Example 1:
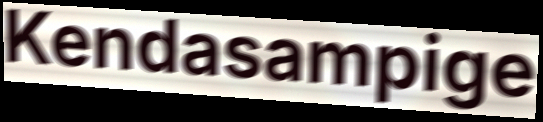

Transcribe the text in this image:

Kendasampige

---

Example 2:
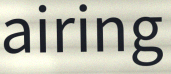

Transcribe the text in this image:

airing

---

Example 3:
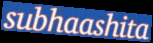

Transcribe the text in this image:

subhaashita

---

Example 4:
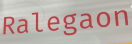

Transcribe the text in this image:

Ralegaon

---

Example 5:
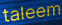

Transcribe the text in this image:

taleem